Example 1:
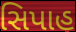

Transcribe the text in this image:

સિપાહ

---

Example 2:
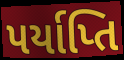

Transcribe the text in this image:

પર્યાપ્તિ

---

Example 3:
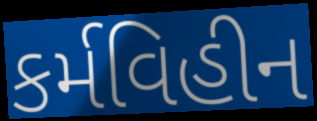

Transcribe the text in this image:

કર્મવિહીન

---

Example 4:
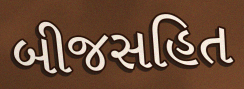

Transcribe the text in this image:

બીજસહિત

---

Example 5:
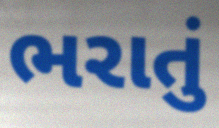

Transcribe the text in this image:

ભરાતું